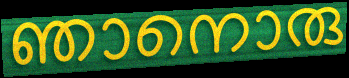
ഞാനൊരു